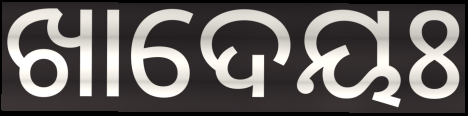
ଖାଦେୟଃ